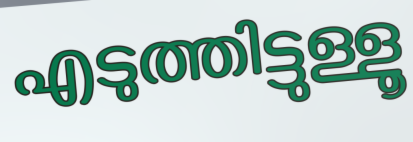
എടുത്തിട്ടുള്ളൂ